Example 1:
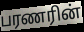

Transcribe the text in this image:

பரணரின்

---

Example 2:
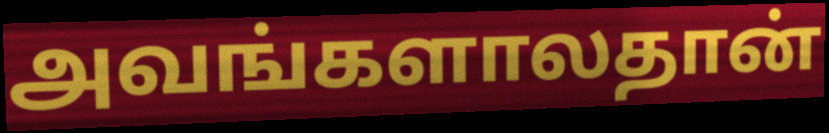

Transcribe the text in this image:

அவங்களாலதான்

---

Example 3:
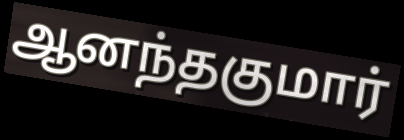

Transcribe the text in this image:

ஆனந்தகுமார்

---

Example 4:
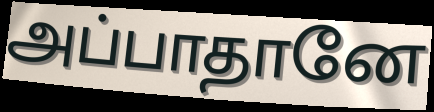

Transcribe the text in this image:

அப்பாதானே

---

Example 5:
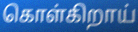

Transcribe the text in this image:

கொள்கிறாய்